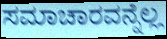
ಸಮಾಚಾರವನ್ನೆಲ್ಲ